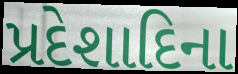
પ્રદેશાદિના